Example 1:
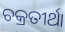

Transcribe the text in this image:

ଚକ୍ରତୀର୍ଥା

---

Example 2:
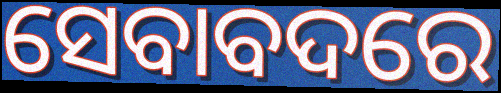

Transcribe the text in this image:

ସେବାବଦରେ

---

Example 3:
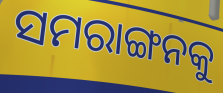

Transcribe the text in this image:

ସମରାଙ୍ଗନକୁ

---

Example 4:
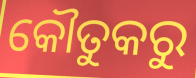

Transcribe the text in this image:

କୌତୁକରୁ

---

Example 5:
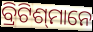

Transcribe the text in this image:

ବ୍ରିଟିଶ୍‍ମାନେ